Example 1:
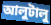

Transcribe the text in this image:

আলুটালু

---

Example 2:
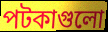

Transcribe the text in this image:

পটকাগুলো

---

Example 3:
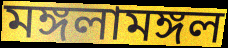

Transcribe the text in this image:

মঙ্গলামঙ্গল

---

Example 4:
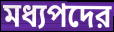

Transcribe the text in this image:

মধ্যপদের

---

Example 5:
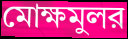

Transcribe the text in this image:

মোক্ষমুলর